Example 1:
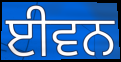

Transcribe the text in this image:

ਈਵਨ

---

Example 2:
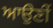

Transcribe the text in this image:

ਆਉਣੀੰ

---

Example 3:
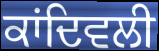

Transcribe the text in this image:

ਕਾਂਦਿਵਲੀ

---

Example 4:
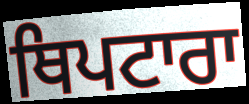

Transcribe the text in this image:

ਥਿਪਟਾਰਾ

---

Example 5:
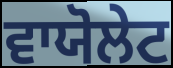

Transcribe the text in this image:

ਵਾਯੋਲੇਟ